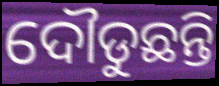
ଦୌଡୁଛନ୍ତି